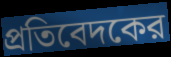
প্রতিবেদকের